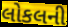
લોકલની